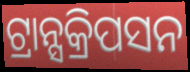
ଟ୍ରାନ୍ସକ୍ରିପସନ